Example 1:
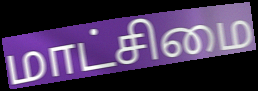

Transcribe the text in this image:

மாட்சிமை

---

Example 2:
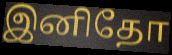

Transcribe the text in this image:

இனிதோ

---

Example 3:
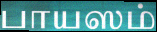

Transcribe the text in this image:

பாயஸம்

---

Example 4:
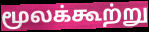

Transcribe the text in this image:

மூலக்கூற்று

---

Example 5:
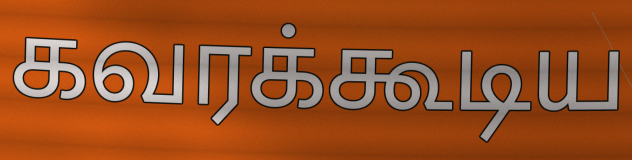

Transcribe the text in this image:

கவரக்கூடிய